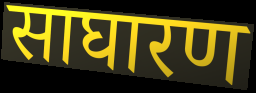
साघारण